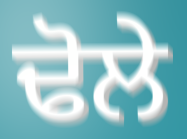
ਢੋਲੇ